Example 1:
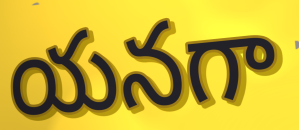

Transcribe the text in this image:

యనగా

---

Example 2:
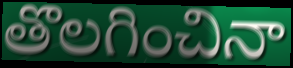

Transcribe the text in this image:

తొలగించినా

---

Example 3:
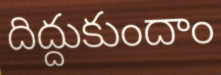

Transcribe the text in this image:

దిద్దుకుందాం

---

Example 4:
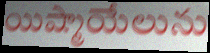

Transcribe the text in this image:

యిష్మాయేలును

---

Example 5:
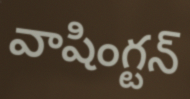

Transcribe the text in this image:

వాషింగ్టన్